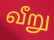
வீறு